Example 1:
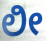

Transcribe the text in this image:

ಲೀ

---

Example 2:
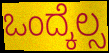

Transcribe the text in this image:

ಒಂದ್ಕೆಲ್ಸ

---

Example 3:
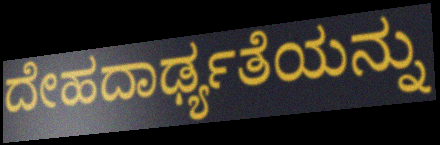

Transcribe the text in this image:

ದೇಹದಾರ್ಢ್ಯತೆಯನ್ನು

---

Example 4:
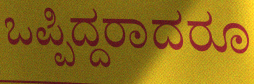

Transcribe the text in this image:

ಒಪ್ಪಿದ್ದರಾದರೂ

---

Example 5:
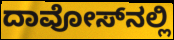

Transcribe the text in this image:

ದಾವೋಸ್‌ನಲ್ಲಿ